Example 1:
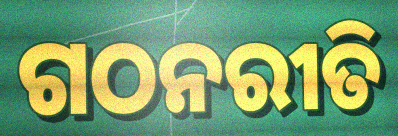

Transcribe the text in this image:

ଗଠନରୀତି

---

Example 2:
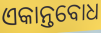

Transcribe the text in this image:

ଏକାନ୍ତବୋଧ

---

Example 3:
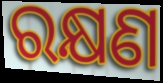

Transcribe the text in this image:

ରକ୍ଷଣ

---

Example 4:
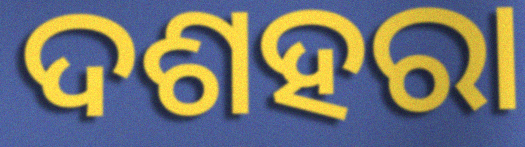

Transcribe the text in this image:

ଦଶହରା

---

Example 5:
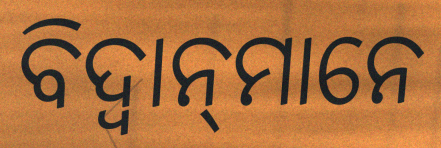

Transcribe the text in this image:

ବିଦ୍ୱାନ୍‌ମାନେ